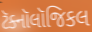
ટૅક્નૉલૉજિકલ